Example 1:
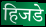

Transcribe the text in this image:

हिजडे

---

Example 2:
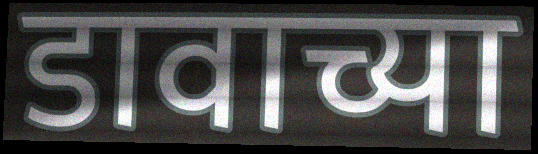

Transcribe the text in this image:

डावाच्या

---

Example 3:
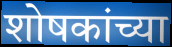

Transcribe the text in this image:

शोषकांच्या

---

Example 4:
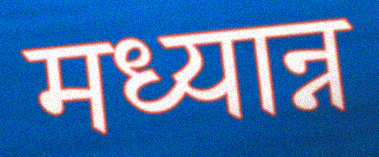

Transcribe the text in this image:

मध्यान्न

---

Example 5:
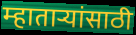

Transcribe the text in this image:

म्हाताऱ्यांसाठी